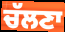
ਚੱਲਣਾ